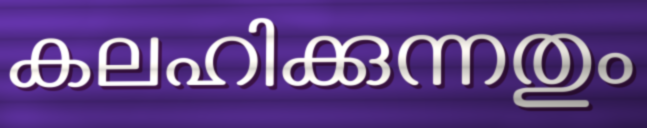
കലഹിക്കുന്നതും